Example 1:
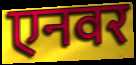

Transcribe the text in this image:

एनवर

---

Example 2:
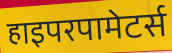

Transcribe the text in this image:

हाइपरपामेटर्स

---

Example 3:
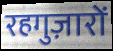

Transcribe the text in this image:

रहगुज़ारों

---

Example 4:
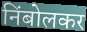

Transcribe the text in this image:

निंबोलकर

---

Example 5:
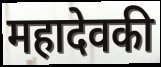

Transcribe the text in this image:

महादेवकी